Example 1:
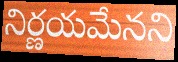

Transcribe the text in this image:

నిర్ణయమేనని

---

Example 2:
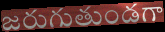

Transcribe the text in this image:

జరుగుతుండగా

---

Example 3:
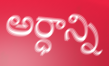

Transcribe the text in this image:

అర్ధాన్ని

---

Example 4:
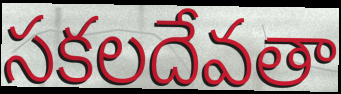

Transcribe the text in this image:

సకలదేవతా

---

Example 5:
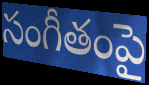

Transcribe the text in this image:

సంగీతంపై